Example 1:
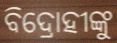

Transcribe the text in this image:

ବିଦ୍ରୋହୀଙ୍କୁ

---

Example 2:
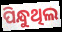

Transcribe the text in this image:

ପିନ୍ଧୁଥିଲ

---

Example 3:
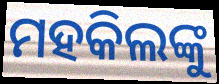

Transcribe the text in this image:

ମହକିଲଙ୍କୁ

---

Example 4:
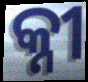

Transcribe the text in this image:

କ୍ନୀ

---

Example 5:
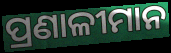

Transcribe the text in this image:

ପ୍ରଣାଳୀମାନ